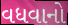
વધવાનો